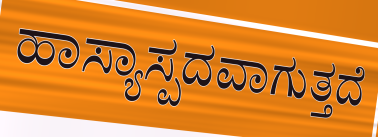
ಹಾಸ್ಯಾಸ್ಪದವಾಗುತ್ತದೆ